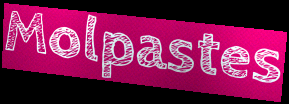
Molpastes